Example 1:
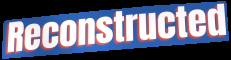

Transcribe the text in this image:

Reconstructed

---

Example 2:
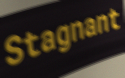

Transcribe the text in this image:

Stagnant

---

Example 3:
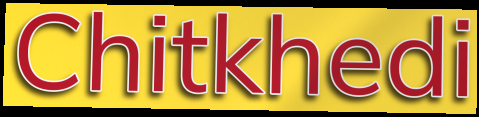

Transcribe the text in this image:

Chitkhedi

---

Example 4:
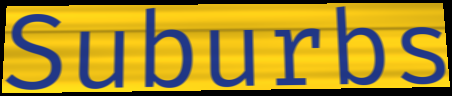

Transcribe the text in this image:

Suburbs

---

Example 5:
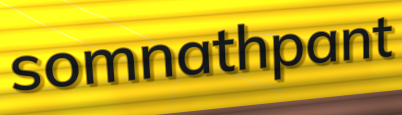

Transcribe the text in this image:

somnathpant